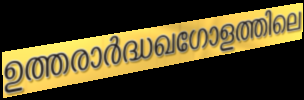
ഉത്തരാർദ്ധഖഗോളത്തിലെ